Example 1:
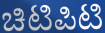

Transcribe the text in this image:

ಚಿಟಿಪಿಟಿ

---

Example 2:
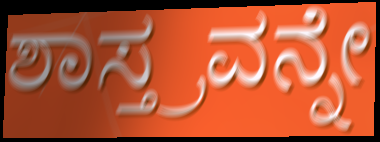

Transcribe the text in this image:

ಶಾಸ್ತ್ರವನ್ನೇ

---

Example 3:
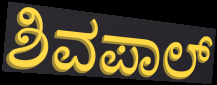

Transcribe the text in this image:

ಶಿವಪಾಲ್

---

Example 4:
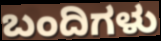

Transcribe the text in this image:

ಬಂದಿಗಳು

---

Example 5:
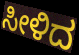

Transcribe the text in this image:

ಸೀಳಿದ